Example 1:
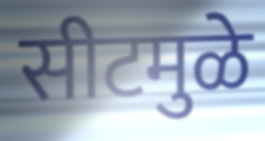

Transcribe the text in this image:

सीटमुळे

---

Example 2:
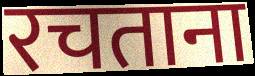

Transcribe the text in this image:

रचताना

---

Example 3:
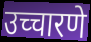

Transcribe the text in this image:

उच्चारणे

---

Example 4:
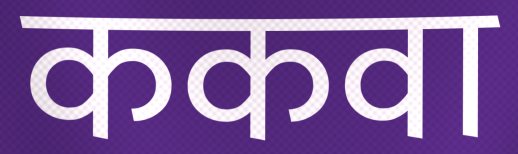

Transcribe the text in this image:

ककवा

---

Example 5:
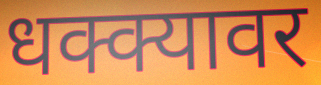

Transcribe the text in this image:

धक्क्यावर